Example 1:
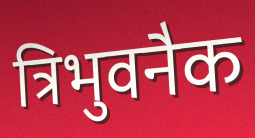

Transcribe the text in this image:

त्रिभुवनैक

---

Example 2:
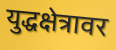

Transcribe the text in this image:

युद्धक्षेत्रावर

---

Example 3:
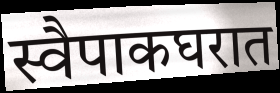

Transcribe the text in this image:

स्वैपाकघरात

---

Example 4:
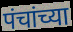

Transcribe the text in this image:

पंचांच्या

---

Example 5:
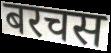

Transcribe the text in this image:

बरचस